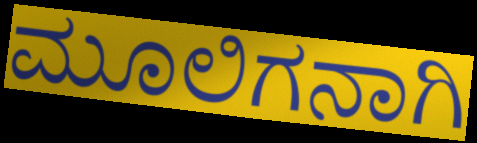
ಮೂಲಿಗನಾಗಿ